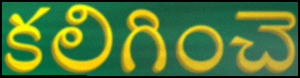
కలిగించె